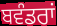
ਬਵੰਡਰਾਂ